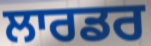
ਲਾਰਡਰ